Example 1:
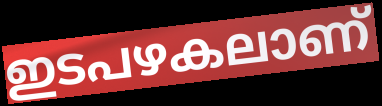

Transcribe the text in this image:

ഇടപഴകലാണ്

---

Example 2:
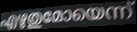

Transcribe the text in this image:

എഴുതുമോയെന്ന്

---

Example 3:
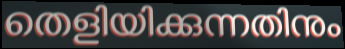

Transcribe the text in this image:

തെളിയിക്കുന്നതിനും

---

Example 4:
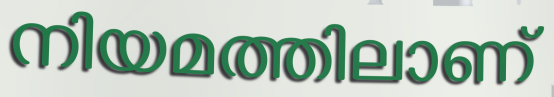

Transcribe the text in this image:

നിയമത്തിലാണ്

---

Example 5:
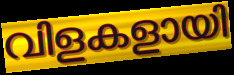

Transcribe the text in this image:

വിളകളായി